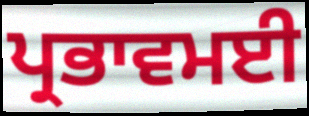
ਪ੍ਰਭਾਵਮਈ